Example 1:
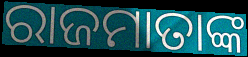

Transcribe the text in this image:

ରାଜମାତାଙ୍କ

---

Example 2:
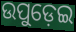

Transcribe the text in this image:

ଉପୁଡ଼େଇ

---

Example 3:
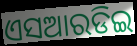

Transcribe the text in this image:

ଏସଆରଡିଇ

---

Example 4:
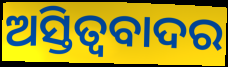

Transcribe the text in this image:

ଅସ୍ତିତ୍ବବାଦର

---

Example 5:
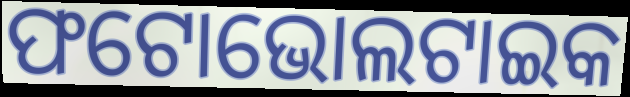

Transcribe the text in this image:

ଫଟୋଭୋଲଟାଇକ